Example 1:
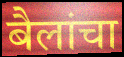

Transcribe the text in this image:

बैलांचा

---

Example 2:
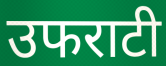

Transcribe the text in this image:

उफराटी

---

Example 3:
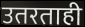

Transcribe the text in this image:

उतरताही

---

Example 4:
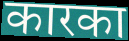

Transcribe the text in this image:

कारका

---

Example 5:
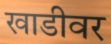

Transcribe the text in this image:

खाडीवर